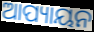
ଆପ୍ୟାୟନ